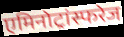
एमिनोट्रांस्फरेज